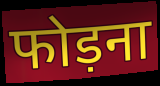
फोड़ना